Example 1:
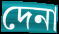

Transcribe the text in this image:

দেনা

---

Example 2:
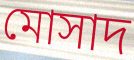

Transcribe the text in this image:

মোসাদ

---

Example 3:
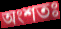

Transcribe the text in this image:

অংশতঃ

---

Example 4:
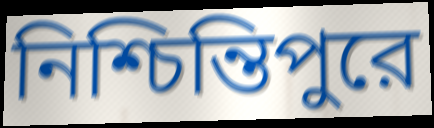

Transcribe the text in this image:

নিশ্চিন্তিপুরে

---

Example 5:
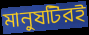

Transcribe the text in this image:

মানুষটিরই